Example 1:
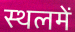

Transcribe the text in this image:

स्थलमें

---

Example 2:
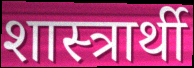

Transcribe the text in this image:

शास्त्रार्थी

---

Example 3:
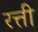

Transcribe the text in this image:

रत्ती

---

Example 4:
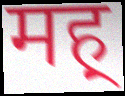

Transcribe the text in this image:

मह्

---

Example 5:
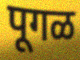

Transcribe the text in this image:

पूगळ